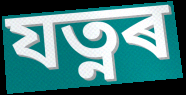
যত্নৰ